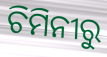
ଚିମିନୀରୁ